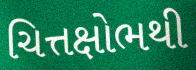
ચિત્તક્ષોભથી